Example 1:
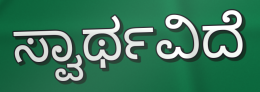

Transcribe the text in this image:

ಸ್ವಾರ್ಥವಿದೆ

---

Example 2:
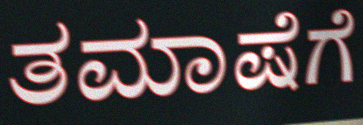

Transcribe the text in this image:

ತಮಾಷೆಗೆ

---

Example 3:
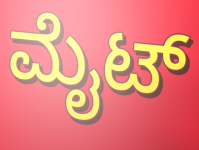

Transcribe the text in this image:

ಮೈಟ್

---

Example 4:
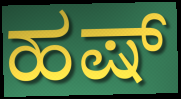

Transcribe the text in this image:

ಹಷ್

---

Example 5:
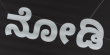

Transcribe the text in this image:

ನೋಡಿ